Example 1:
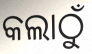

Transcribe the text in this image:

କଲାଠୁଁ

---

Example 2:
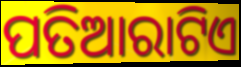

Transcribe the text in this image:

ପତିଆରାଟିଏ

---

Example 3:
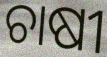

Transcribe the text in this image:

ଚାଷୀ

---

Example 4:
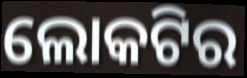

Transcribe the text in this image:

ଲୋକଟିର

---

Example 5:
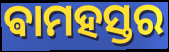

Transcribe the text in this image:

ଵାମହସ୍ତର